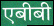
एबीबी